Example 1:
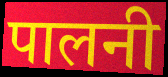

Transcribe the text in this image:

पालनी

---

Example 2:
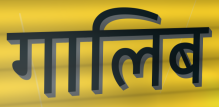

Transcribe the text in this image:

गालिब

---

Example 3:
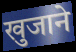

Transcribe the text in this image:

खुजाने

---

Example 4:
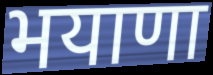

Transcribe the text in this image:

भयाणा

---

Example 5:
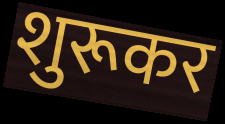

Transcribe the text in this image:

शुरूकर